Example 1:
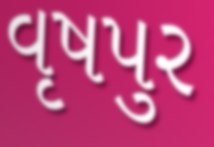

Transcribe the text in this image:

વૃષપુર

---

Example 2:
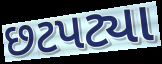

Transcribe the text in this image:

છટપટ્યા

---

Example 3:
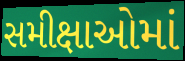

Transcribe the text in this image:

સમીક્ષાઓમાં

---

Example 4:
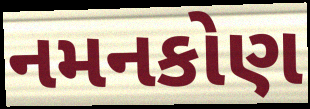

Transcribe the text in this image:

નમનકોણ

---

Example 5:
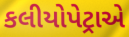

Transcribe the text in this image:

કલીયોપેટ્રાએ